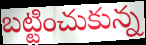
బట్టించుకున్న